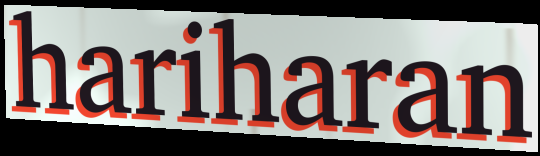
hariharan